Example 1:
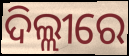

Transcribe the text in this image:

ଦିଲ୍ଲୀରେ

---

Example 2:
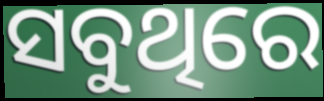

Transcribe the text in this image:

ସବୁଥିରେ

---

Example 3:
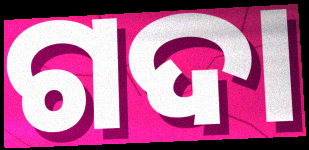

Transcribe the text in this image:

ଗଦା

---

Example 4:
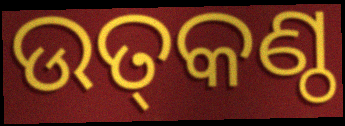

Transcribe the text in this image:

ଉତ୍‌କଣ୍ଠ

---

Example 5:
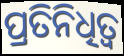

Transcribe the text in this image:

ପ୍ରତିନିଧିତ୍ବ